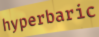
hyperbaric